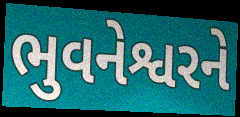
ભુવનેશ્વરને